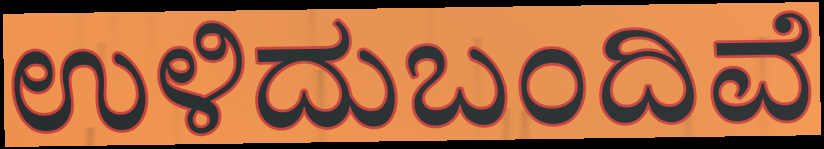
ಉಳಿದುಬಂದಿವೆ